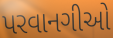
પરવાનગીઓ